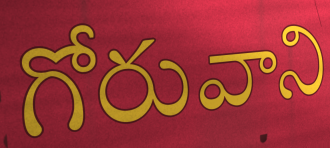
గోరువాని